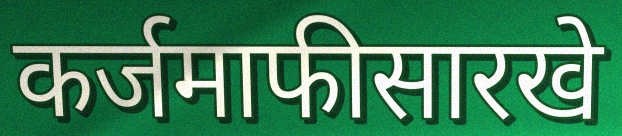
कर्जमाफीसारखे